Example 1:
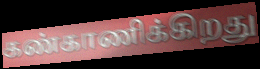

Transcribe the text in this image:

கண்காணிக்கிறது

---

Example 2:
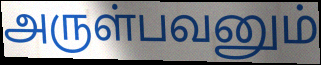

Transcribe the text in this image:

அருள்பவனும்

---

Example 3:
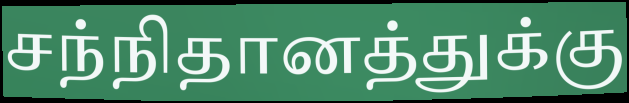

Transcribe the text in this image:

சந்நிதானத்துக்கு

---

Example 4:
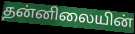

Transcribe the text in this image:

தன்னிலையின்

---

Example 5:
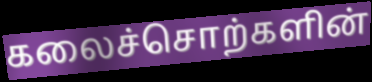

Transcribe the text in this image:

கலைச்சொற்களின்